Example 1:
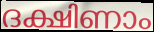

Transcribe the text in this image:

ദക്ഷിണാം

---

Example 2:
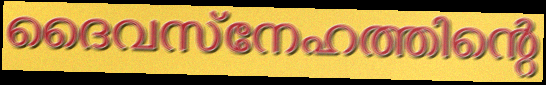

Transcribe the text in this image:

ദൈവസ്‌നേഹത്തിന്റെ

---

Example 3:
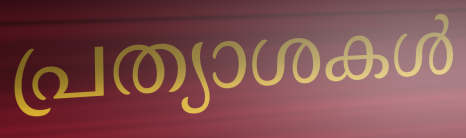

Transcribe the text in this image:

പ്രത്യാശകൾ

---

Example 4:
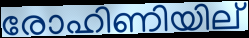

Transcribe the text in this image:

രോഹിണിയില്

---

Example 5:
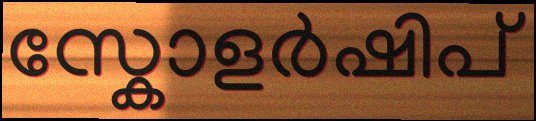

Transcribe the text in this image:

സ്കോളർഷിപ്